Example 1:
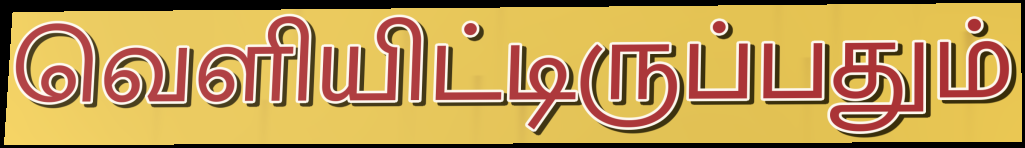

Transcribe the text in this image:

வெளியிட்டிருப்பதும்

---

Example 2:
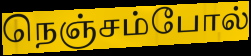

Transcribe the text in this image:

நெஞ்சம்போல்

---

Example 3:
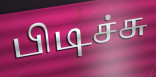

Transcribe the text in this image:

பிடிச்சு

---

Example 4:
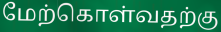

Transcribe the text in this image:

மேற்கொள்வதற்கு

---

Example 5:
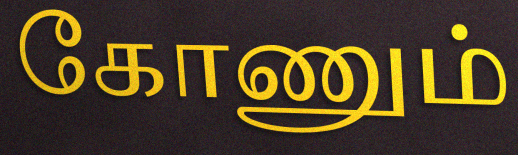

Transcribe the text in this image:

கோணும்